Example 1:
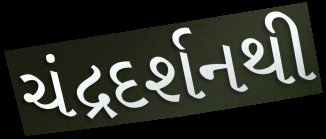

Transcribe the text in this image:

ચંદ્રદર્શનથી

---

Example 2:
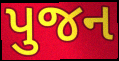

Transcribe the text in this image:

પુજન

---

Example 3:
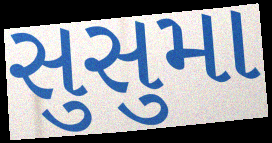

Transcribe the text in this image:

સુસુમા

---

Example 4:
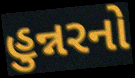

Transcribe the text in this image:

હુન્નરનો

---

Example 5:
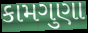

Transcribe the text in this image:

કામગુણા